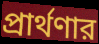
প্রার্থণার